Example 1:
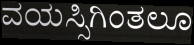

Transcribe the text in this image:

ವಯಸ್ಸಿಗಿಂತಲೂ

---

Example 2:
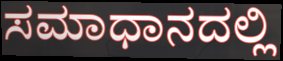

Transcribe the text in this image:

ಸಮಾಧಾನದಲ್ಲಿ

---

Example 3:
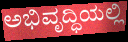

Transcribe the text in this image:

ಅಭಿವೃದ್ಧಿಯಲ್ಲಿ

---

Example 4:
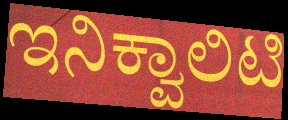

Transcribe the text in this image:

ಇನಿಕ್ವಾಲಿಟಿ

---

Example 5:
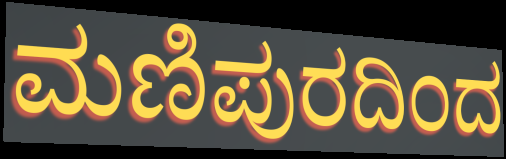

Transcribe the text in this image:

ಮಣಿಪುರದಿಂದ